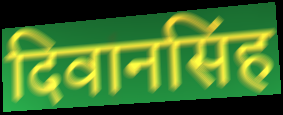
दिवानसिंह